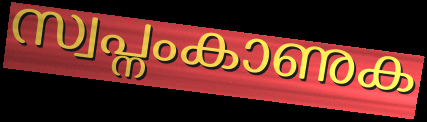
സ്വപ്നംകാണുക